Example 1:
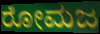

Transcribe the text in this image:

ರೋಮಜ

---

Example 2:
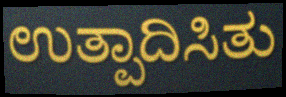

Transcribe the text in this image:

ಉತ್ಪಾದಿಸಿತು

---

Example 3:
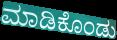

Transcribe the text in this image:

ಮಾಡಿಕೊಂಡು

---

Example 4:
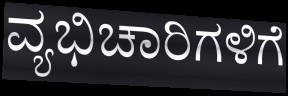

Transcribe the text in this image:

ವ್ಯಭಿಚಾರಿಗಳಿಗೆ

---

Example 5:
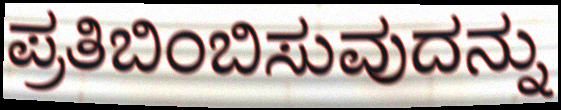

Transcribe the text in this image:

ಪ್ರತಿಬಿಂಬಿಸುವುದನ್ನು